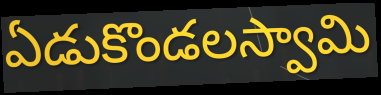
ఏడుకొండలస్వామి